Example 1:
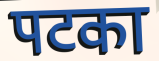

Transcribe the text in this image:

पटका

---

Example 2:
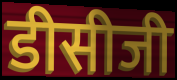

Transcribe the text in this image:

डीसीजी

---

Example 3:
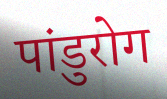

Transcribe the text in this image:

पांडुरोग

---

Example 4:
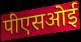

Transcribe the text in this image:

पीएसओई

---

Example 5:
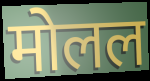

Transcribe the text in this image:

मोलल